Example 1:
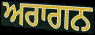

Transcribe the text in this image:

ਅਰਾਗਨ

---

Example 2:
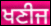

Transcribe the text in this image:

ਖਣੀਜ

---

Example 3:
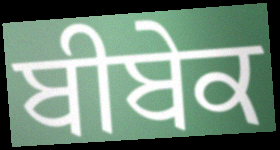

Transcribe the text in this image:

ਬੀਬੇਕ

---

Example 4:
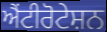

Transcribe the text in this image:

ਐਂਟੀਰੋਟੇਸ਼ਨ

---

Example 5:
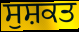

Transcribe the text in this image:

ਸੁਸ਼ਕਤ